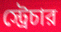
স্ট্রেচার